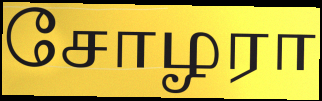
சோழரா